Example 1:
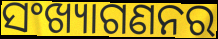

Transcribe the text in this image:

ସଂଖ୍ୟାଗଣନର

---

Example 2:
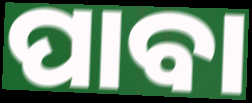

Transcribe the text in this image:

ପାବା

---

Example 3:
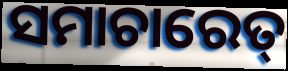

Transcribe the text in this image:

ସମାଚାରେତ୍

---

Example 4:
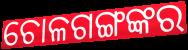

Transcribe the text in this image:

ଚୋଳଗଙ୍ଗଙ୍କର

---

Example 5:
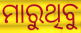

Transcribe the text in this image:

ମାରୁଥିବୁ